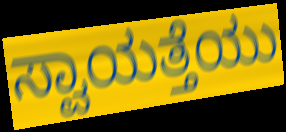
ಸ್ವಾಯತ್ತೆಯು